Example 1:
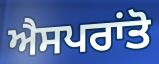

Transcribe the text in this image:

ਐਸਪਰਾਂਤੋ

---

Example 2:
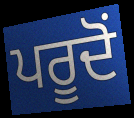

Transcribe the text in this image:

ਪਰੂਦੋਂ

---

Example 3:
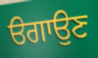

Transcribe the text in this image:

ੳਗਾਉਣ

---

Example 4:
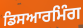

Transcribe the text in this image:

ਡਿਸਆਰਮਿੰਗ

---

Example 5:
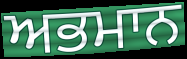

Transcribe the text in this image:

ਅਭਮਾਨ